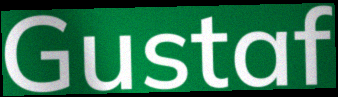
Gustaf